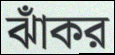
ঝাঁকর